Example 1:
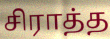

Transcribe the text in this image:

சிராத்த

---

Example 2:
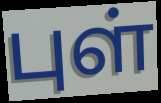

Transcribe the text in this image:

புள்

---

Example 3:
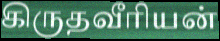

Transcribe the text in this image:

கிருதவீரியன்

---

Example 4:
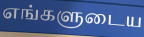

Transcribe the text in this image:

எங்களுடைய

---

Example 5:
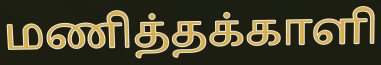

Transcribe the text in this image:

மணித்தக்காளி